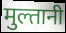
मुल्‍तानी